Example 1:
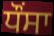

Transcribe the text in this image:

ਧੌਂਸਾ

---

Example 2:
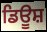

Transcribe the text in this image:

ਡਿਊਸ਼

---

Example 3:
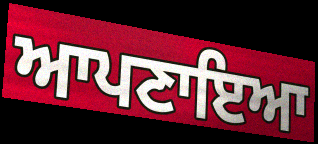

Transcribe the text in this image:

ਆਪਣਾਇਆ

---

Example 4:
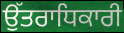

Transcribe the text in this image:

ਉੱਤਰਾਧਿਕਾਰੀ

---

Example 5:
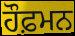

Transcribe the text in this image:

ਹੌਫ਼ਮਨ